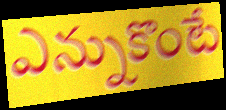
ఎన్నుకొంటే